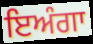
ਇਅੰਗਾ